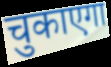
चुकाएगा